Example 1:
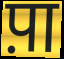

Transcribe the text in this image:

प़ा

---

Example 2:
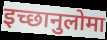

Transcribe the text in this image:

इच्छानुलोमा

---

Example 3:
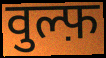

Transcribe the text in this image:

वुल्फ़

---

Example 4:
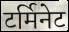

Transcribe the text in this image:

टर्मिनेट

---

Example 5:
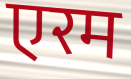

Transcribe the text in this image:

एरम